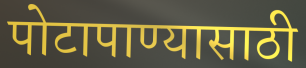
पोटापाण्यासाठी